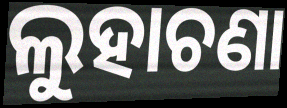
ଲୁହାଚଣା